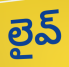
లైవ్